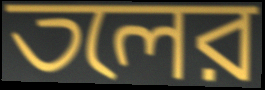
তলের